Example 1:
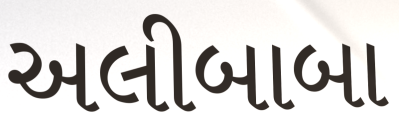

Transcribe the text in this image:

અલીબાબા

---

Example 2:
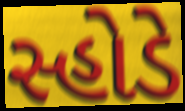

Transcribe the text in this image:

સ્હોડે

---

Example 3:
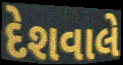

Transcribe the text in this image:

દેશવાલે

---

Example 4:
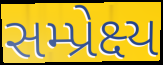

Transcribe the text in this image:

સમ્પ્રેક્ષ્ય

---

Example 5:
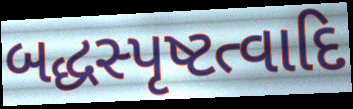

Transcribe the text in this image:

બદ્ધસ્પૃષ્ટત્વાદિ